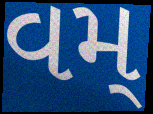
વમ્